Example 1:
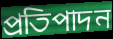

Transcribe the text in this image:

প্রতিপাদন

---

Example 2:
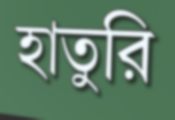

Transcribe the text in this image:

হাতুরি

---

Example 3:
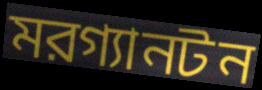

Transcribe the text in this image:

মরগ্যানটন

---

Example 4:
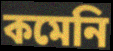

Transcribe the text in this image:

কমেনি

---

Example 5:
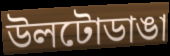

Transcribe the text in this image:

উলটোডাঙা